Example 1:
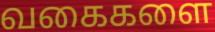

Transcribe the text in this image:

வகைகளை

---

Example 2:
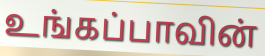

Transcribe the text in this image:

உங்கப்பாவின்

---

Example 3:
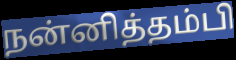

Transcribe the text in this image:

நன்னித்தம்பி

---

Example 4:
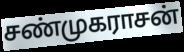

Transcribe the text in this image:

சண்முகராசன்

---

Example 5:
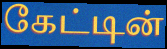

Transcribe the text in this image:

கேட்டின்